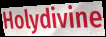
Holydivine